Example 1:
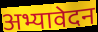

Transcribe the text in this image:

अभ्यावेदन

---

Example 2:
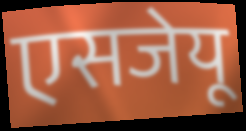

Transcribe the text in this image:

एसजेयू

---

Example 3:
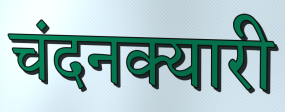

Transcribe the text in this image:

चंदनक्यारी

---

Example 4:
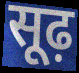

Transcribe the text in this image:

सूढ़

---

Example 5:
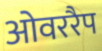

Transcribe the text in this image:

ओवररैप